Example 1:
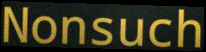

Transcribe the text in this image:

Nonsuch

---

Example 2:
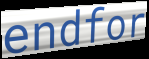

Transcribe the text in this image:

endfor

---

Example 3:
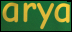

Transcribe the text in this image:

arya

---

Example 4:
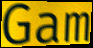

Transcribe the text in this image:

Gam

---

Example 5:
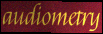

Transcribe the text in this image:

audiometry